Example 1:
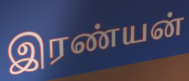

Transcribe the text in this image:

இரண்யன்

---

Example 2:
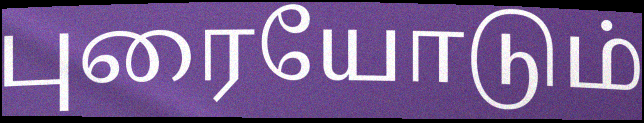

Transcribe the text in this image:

புரையோடும்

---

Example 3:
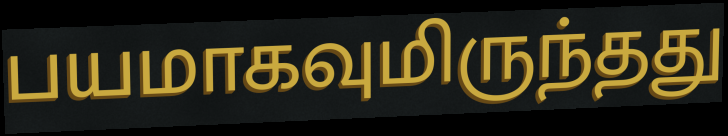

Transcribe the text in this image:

பயமாகவுமிருந்தது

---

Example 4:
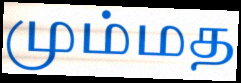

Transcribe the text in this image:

மும்மத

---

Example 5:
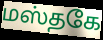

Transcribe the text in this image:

மஸ்தகே